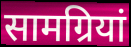
सामग्रियां